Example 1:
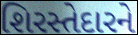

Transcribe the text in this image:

શિરસ્તેદારને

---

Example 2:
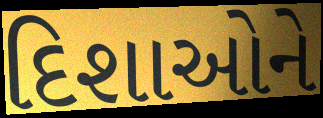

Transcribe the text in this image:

દિશાઓને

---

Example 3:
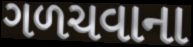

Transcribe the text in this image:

ગળચવાના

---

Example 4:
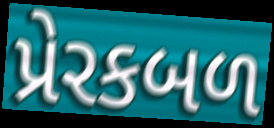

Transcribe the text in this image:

પ્રેરકબળ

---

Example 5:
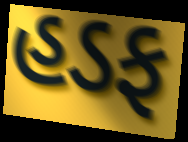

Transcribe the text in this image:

હડફ